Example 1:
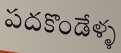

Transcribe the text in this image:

పదకొండేళ్ళ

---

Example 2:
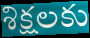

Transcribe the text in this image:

శిక్షలకు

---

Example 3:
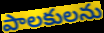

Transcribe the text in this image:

పాలకులను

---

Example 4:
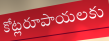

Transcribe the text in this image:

కోట్లరూపాయలకు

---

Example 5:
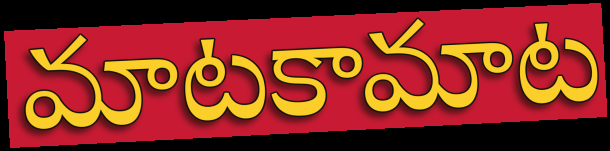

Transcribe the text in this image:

మాటకామాట